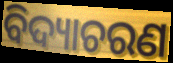
ବିଦ୍ୟାଚରଣ